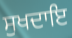
ਸੁਖਦਾਇ